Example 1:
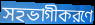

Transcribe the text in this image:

সহভাগীকরণে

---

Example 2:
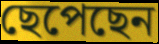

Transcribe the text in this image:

ছেপেছেন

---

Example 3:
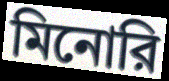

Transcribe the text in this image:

মিনোরি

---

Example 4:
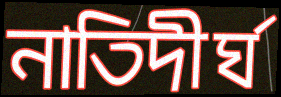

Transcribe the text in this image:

নাতিদীর্ঘ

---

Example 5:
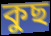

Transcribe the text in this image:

কুছ